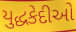
યુદ્ધકેદીઓ